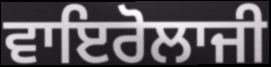
ਵਾਇਰੋਲਾਜੀ